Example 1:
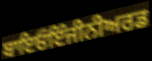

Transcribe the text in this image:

ਬਾਇਓਇੰਜੀਨੀਅਰਡ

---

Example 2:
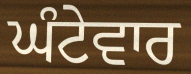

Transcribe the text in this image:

ਘੰਟੇਵਾਰ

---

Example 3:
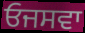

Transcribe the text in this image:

ਓਜਸਵਾ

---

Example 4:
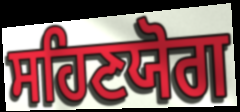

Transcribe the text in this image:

ਸਹਿਣਯੋਗ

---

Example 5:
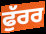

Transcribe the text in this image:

ਫੁੱਰਰ